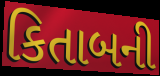
કિતાબની